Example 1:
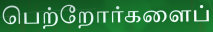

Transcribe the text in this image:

பெற்றோர்களைப்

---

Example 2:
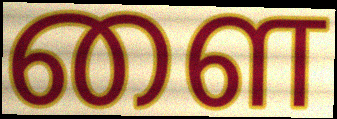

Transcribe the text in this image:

ளை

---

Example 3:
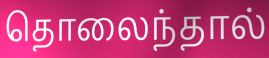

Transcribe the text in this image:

தொலைந்தால்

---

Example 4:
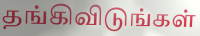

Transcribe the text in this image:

தங்கிவிடுங்கள்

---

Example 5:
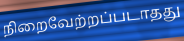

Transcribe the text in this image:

நிறைவேற்றப்படாதது